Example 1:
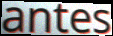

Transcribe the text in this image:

antes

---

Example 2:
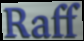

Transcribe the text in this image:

Raff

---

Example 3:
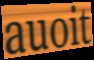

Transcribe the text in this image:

auoit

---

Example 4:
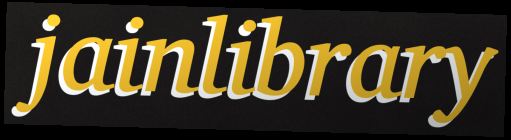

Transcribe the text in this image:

jainlibrary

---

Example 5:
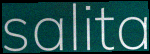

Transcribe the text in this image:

salita